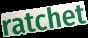
ratchet